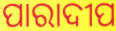
ପାରାଦୀପ